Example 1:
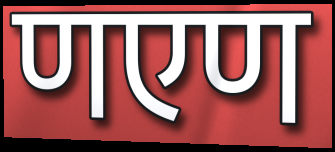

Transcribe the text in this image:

णएण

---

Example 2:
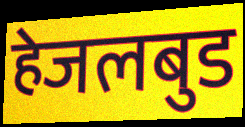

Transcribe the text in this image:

हेजलबुड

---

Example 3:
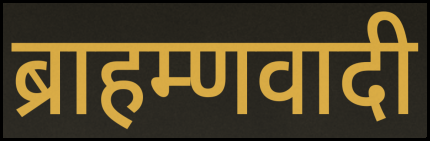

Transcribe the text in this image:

ब्राहम्णवादी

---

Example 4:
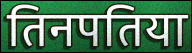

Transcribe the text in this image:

तिनपतिया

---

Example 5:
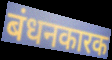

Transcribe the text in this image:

बंधनकारक